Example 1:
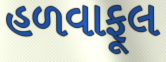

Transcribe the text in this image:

હળવાફૂલ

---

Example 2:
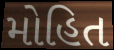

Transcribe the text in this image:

મોહિત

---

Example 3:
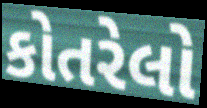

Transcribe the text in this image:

કોતરેલો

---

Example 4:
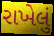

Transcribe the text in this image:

રાખેલું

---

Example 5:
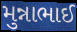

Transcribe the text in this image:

મુન્નાભાઈ